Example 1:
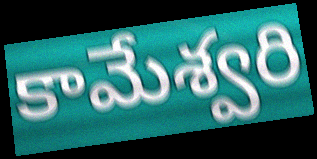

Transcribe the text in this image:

కామేశ్వరి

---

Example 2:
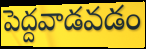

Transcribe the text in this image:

పెద్దవాడవడం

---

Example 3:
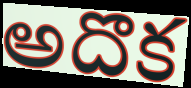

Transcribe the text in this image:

అదొక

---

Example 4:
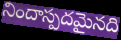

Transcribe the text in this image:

నిందాస్పదమైనది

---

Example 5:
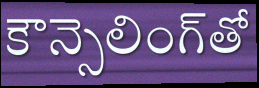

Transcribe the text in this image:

కౌన్సెలింగ్‌తో